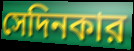
সেদিনকার